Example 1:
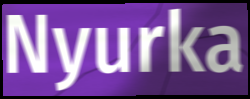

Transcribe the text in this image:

Nyurka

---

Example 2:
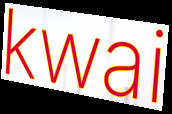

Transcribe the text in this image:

kwai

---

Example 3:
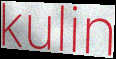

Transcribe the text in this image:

kulin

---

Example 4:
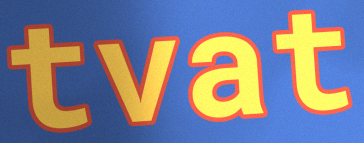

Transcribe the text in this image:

tvat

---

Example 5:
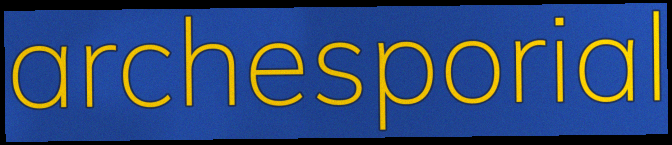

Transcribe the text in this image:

archesporial